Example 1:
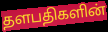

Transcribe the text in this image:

தளபதிகளின்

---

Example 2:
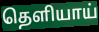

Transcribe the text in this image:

தெளியாய்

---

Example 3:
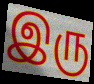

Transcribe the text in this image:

இரு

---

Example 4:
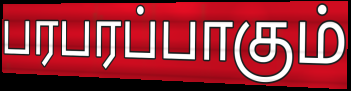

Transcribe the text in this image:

பரபரப்பாகும்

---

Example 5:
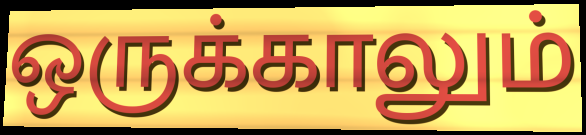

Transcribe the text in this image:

ஒருக்காலும்